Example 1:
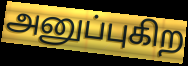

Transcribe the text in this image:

அனுப்புகிற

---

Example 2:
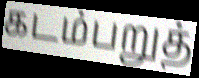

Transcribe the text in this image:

கடம்பறுத்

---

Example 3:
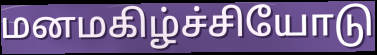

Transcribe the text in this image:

மனமகிழ்ச்சியோடு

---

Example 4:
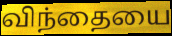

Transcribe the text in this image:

விந்தையை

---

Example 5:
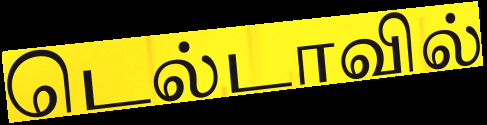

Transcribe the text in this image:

டெல்டாவில்